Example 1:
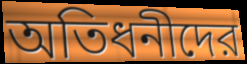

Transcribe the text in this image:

অতিধনীদের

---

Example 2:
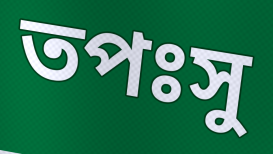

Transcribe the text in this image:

তপঃসু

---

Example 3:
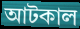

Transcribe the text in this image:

আটকাল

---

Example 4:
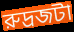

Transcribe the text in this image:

রুদ্রজটা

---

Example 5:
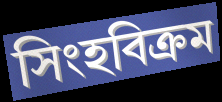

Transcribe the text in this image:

সিংহবিক্রম